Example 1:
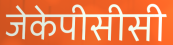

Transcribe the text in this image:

जेकेपीसीसी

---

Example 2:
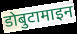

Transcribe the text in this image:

डोबुटामाइन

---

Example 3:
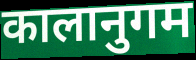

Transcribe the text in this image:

कालानुगम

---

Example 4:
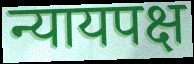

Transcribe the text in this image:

न्यायपक्ष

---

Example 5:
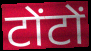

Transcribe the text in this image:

टोंटों